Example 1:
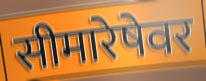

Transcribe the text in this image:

सीमारेषेवर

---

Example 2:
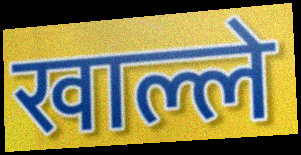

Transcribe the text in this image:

खाल्ले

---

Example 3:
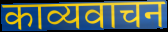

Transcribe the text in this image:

काव्यवाचन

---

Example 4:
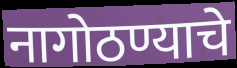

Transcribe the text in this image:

नागोठण्याचे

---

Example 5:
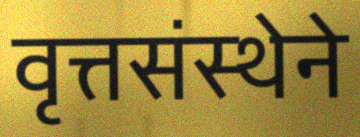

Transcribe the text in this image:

वृत्तसंस्थेने